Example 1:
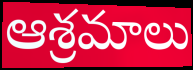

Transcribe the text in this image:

ఆశ్రమాలు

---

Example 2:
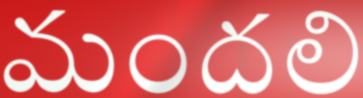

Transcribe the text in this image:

మందలి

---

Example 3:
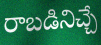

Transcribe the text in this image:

రాబడినిచ్చే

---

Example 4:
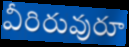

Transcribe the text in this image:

వీరిరువురూ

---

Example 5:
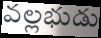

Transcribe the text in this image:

వల్లభుడు